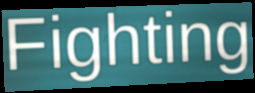
Fighting